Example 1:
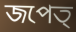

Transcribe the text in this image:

জপেত্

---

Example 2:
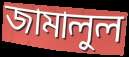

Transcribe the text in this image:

জামালুল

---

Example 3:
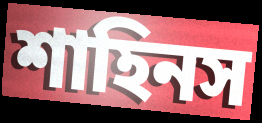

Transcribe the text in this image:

শাহিনস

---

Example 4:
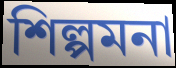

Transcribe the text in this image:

শিল্পমনা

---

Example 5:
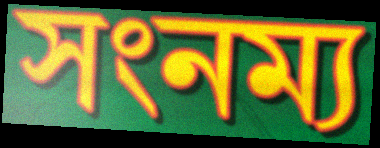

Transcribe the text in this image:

সংনম্য